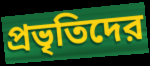
প্রভৃতিদের